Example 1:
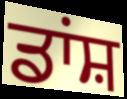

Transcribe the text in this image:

ਡਾਂਸ਼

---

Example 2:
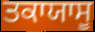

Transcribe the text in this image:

ਤਕਾਯਾਸੂ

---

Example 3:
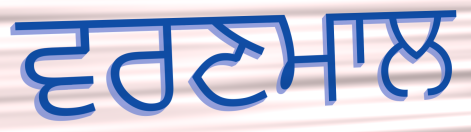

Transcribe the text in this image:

ਵਰਣਮਾਲ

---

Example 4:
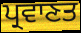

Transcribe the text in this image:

ਪ੍ਰਵਾਣਤ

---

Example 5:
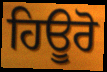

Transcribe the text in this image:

ਹਿਊਰੋ